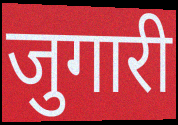
जुगारी